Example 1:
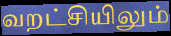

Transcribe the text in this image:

வறட்சியிலும்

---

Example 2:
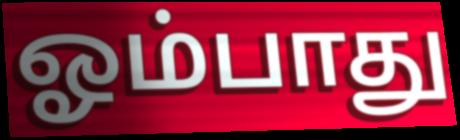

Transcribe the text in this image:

ஓம்பாது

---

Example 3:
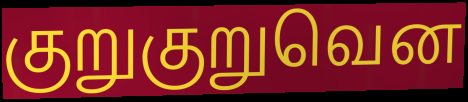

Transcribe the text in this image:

குறுகுறுவென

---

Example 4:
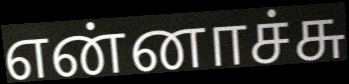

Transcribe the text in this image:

என்னாச்சு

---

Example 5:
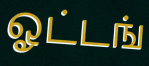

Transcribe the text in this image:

ஓட்டங்